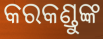
କରକଣ୍ଡୁଙ୍କ